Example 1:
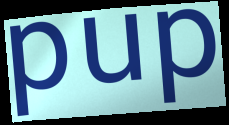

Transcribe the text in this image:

pup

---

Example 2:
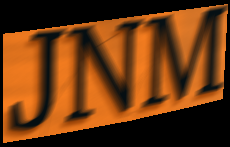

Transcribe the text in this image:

JNM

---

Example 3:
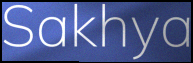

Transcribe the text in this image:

Sakhya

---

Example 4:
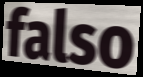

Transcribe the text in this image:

falso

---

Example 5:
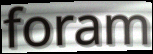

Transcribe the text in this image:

foram